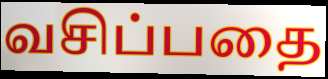
வசிப்பதை